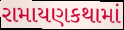
રામાયણકથામાં